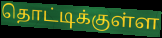
தொட்டிக்குள்ள